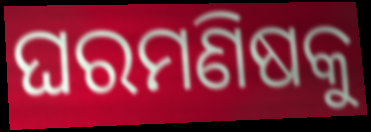
ଘରମଣିଷକୁ